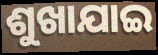
ଶୁଖାଯାଇ